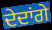
ਦੇਦਾਂਗੇ